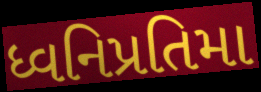
ધ્વનિપ્રતિમા